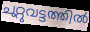
ചുറ്റുവട്ടത്തിൽ